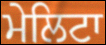
ਮੇਲਿਟਾ